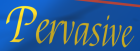
Pervasive